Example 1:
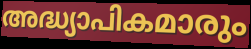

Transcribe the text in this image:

അദ്ധ്യാപികമാരും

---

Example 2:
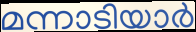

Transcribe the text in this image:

മന്നാടിയാർ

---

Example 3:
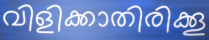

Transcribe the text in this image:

വിളിക്കാതിരിക്കൂ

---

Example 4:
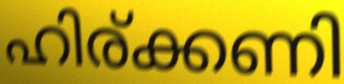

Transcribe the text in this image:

ഹിര്ക്കണി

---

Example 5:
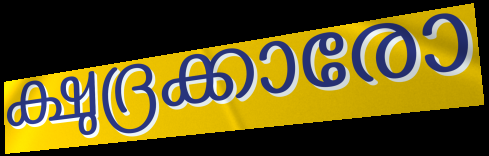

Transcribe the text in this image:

ക്ഷുദ്രക്കാരോ